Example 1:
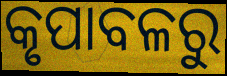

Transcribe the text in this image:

କୃପାବଳରୁ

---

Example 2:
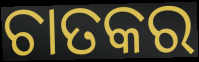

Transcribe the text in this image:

ଚାତକର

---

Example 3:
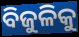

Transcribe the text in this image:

ବିଜୁଳିକୁ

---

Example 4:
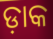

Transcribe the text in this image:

ଡ଼ାକ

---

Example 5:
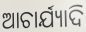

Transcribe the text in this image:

ଆଚାର୍ଯ୍ୟାଦି